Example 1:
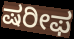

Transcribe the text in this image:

ಷರೀಫ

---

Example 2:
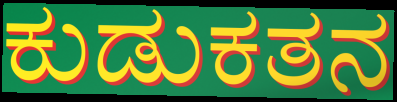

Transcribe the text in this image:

ಕುಡುಕತನ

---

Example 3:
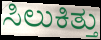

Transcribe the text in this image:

ಸಿಲುಕಿತ್ತು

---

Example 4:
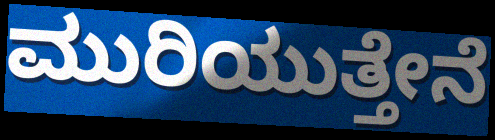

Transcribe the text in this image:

ಮುರಿಯುತ್ತೇನೆ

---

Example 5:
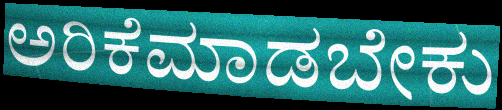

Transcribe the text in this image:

ಅರಿಕೆಮಾಡಬೇಕು